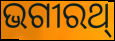
ଭଗୀରଥ୍